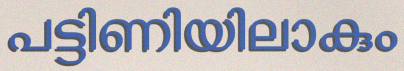
പട്ടിണിയിലാകും